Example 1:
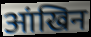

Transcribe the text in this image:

आंखिन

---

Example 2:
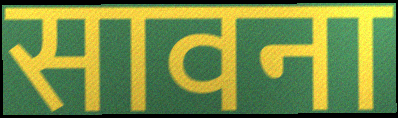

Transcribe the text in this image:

सावना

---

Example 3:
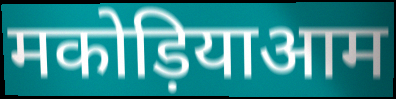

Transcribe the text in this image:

मकोड़ियाआम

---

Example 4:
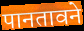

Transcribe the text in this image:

पानतावने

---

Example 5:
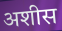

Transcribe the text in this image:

अशीस